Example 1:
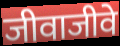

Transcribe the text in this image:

जीवाजीवे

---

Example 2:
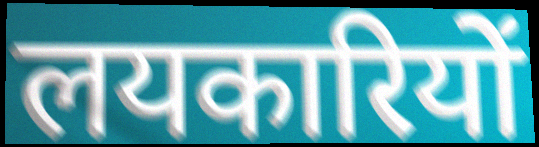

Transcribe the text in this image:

लयकारियों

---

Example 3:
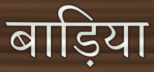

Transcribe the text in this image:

बाड़िया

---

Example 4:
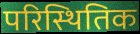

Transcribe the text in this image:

परिस्थितिक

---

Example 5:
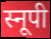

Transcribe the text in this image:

स्नूपी